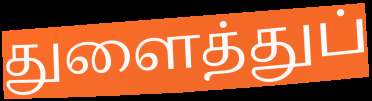
துளைத்துப்